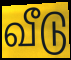
வீடு